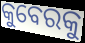
କୁବେରକୁ